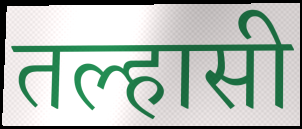
तल्हासी